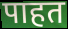
पाहत